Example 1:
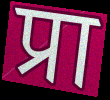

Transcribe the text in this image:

प्रा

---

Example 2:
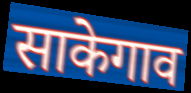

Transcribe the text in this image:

साकेगाव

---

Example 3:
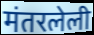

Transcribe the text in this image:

मंतरलेली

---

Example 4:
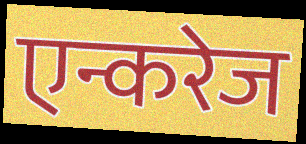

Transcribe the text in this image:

एन्करेज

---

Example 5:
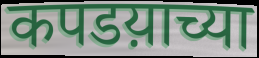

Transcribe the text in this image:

कपडय़ाच्या